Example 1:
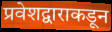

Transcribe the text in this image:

प्रवेशद्वाराकडून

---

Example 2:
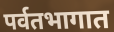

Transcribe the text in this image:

पर्वतभागात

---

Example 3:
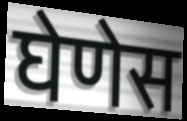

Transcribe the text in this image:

घेणेस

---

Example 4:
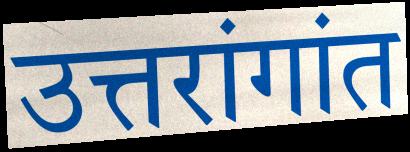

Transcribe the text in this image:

उत्तरांगांत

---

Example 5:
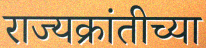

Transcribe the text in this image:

राज्यक्रांतीच्या